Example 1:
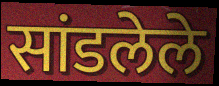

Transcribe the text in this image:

सांडलेले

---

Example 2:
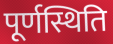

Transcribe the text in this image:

पूर्णस्थिति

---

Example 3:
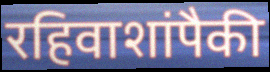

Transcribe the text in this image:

रहिवाशांपैकी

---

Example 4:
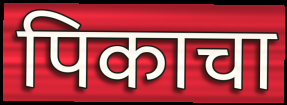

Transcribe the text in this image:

पिकाचा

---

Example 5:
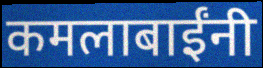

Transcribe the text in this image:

कमलाबाईंनी